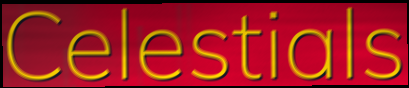
Celestials